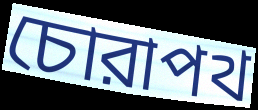
চোরাপথ